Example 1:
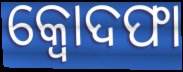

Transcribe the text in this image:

କ୍ବୋଦଫା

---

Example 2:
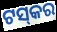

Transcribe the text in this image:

ଟସ୍‍କର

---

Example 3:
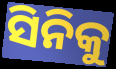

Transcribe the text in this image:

ସିନିକୁ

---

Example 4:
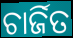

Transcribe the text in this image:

ଚାର୍ଜିତ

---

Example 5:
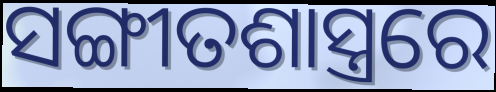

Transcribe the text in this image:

ସଙ୍ଗୀତଶାସ୍ତ୍ରରେ